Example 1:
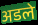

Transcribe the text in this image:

अडले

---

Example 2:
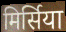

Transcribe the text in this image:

मिर्सिया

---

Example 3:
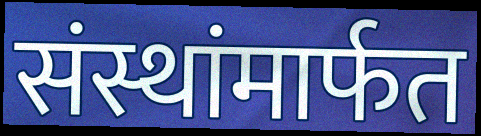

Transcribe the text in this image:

संस्थांमार्फत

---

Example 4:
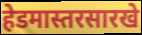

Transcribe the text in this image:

हेडमास्तरसारखे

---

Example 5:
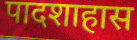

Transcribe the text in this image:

पादशाहास